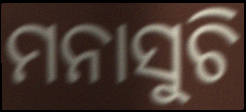
ମନାସୁଚି